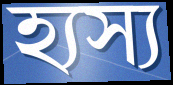
হ্যস্য